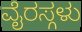
ವೈರಸ್ಗಳು